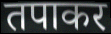
तपाकर